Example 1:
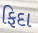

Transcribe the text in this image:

ફિદા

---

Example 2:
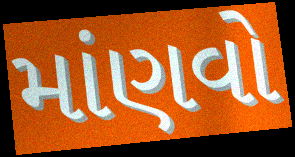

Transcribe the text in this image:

માંણવો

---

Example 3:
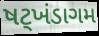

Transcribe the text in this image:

ષટ્ખંડાગમ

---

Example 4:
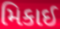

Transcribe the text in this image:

મિકાઈ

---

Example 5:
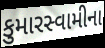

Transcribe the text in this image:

કુમારસ્વામીના